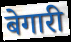
बेगारी